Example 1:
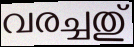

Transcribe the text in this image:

വരച്ചതു്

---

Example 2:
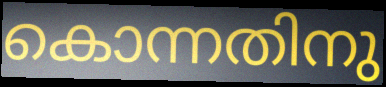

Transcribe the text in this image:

കൊന്നതിനു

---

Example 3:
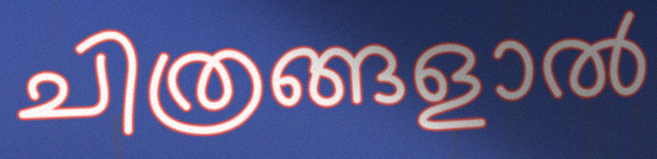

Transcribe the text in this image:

ചിത്രങ്ങളാൽ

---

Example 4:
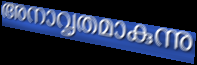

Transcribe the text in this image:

അനാവൃതമാകുന്നു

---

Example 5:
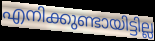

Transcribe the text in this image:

എനിക്കുണ്ടായിട്ടില്ല